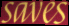
saves